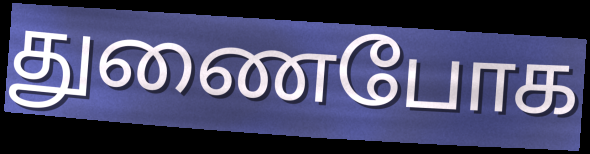
துணைபோக